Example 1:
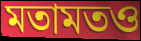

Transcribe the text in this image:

মতামতও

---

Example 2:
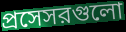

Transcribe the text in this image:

প্রসেসরগুলো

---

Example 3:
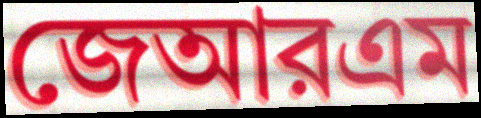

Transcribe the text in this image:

জেআরএম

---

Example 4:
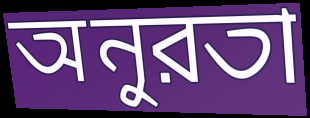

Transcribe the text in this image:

অনুরতা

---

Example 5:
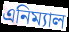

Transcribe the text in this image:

এনিম্যাল